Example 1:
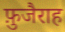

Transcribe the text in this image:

फ़ुजैराह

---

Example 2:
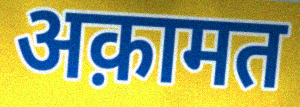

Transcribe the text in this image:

अक़ामत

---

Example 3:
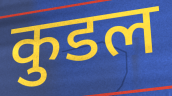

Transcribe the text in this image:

कुडल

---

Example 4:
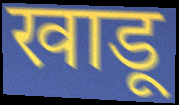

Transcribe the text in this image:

खाडू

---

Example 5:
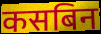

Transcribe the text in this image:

कसबिन